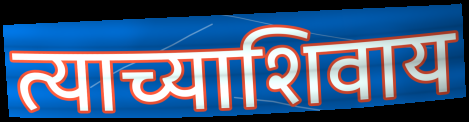
त्याच्याशिवाय